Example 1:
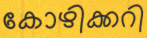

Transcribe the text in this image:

കോഴിക്കറി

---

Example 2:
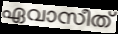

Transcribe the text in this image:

ഏവാസീത്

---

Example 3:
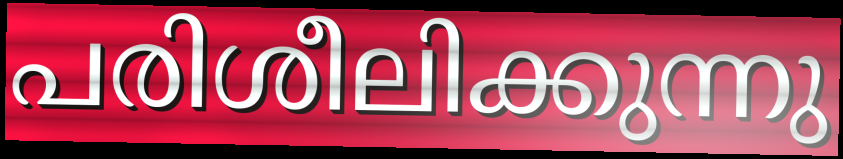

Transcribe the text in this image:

പരിശീലിക്കുന്നു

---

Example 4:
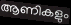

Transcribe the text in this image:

ആണികളും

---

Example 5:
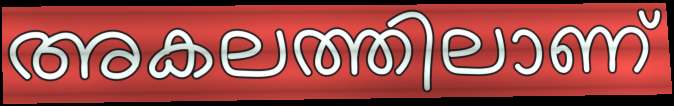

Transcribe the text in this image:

അകലത്തിലാണ്